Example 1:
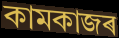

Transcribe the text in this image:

কামকাজৰ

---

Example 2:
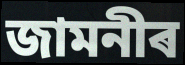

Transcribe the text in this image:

জামনীৰ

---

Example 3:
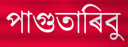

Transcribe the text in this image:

পাগুতাৰিবু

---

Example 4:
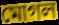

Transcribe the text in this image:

মোগল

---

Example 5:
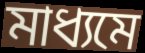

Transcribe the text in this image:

মাধ্যমে